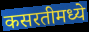
कसरतीमध्ये